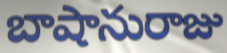
బాషానురాజు